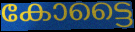
കോട്ടൈ